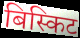
बिस्किट